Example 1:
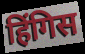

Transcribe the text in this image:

हिंगिस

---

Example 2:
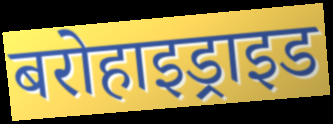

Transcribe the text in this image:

बरोहाइड्राइड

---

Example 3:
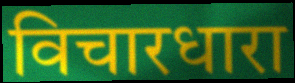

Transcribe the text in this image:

विचारधारा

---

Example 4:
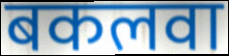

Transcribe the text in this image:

बकलवा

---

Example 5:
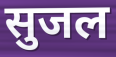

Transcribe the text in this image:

सुजल